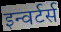
इन्वर्टर्स